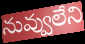
నువ్వులేని